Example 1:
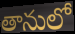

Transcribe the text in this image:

తానులో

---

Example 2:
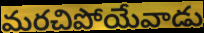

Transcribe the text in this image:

మరచిపోయేవాడు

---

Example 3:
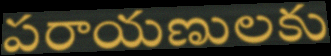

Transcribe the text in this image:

పరాయణులకు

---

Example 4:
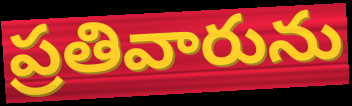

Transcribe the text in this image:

ప్రతివారును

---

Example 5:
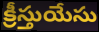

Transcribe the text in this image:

క్రీస్తుయేసు